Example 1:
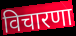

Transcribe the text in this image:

विचारणा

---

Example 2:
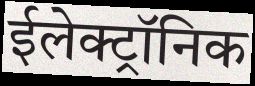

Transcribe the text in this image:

ईलेक्ट्रॉनिक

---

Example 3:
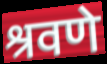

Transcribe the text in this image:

श्रवणे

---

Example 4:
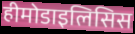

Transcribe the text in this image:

हीमोडाइलिसिस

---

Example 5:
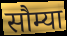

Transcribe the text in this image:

सौम्या